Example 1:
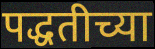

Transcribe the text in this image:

पद्धतीच्या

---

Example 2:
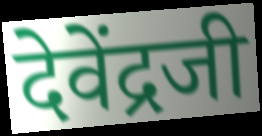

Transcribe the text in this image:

देवेंद्रजी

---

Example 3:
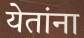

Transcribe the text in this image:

येतांना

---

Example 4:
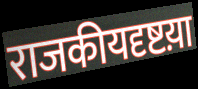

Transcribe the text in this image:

राजकीयदृष्टय़ा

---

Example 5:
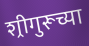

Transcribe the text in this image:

श्रीगुरूच्या